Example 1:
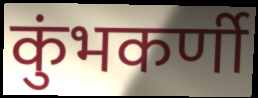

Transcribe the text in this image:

कुंभकर्णी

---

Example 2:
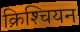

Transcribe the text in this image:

क्रिश्‍चियन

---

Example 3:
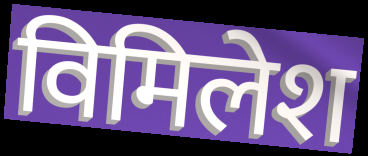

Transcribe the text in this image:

विमिलेश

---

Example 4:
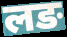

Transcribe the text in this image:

लङ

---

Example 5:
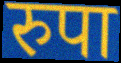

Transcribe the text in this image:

रुपा